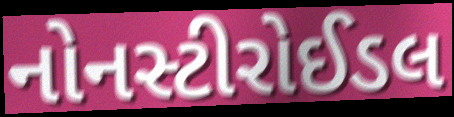
નોનસ્ટીરોઈડલ